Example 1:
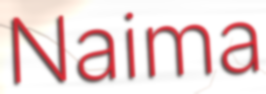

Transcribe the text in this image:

Naima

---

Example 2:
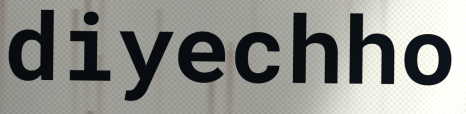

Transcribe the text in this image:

diyechho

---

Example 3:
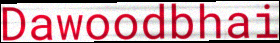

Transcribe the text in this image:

Dawoodbhai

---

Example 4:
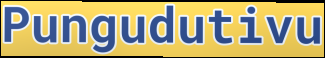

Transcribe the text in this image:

Pungudutivu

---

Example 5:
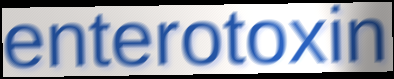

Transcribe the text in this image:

enterotoxin